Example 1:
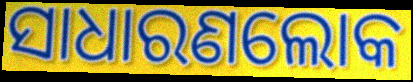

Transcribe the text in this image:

ସାଧାରଣଲୋକ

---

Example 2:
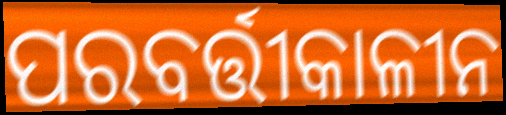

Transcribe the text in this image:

ପରବର୍ତ୍ତୀକାଳୀନ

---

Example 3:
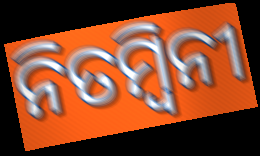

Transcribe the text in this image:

ନିତମ୍ବିନୀ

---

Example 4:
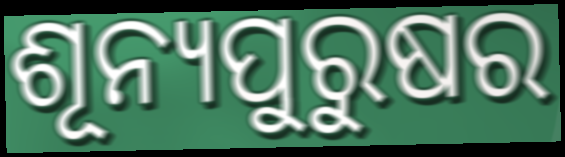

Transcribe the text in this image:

ଶୂନ୍ୟପୁରୁଷର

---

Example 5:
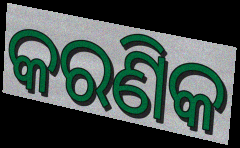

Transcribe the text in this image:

କରଣିକ